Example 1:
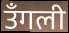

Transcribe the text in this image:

उँगली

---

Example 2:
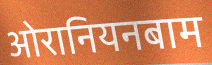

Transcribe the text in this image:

ओरानियनबाम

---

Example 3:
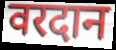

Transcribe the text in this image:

वरदान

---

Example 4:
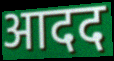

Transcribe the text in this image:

आदद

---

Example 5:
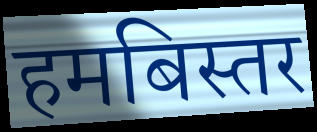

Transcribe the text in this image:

हमबिस्तर